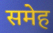
समेह